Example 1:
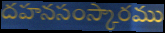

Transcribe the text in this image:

దహనసంస్కారము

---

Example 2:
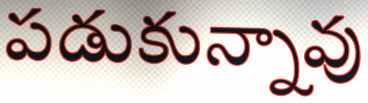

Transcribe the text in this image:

పడుకున్నావు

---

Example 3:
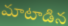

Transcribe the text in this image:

మాటాడిన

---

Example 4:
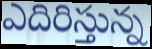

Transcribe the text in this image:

ఎదిరిస్తున్న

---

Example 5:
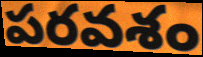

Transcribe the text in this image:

పరవశం